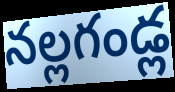
నల్లగండ్ల